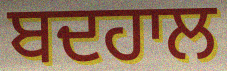
ਬਦਹਾਲ